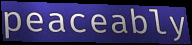
peaceably